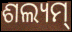
ଶଲ୍ୟମ୍